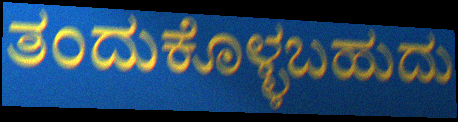
ತಂದುಕೊಳ್ಳಬಹುದು